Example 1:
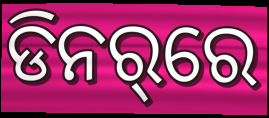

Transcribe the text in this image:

ଡିନର୍‌ରେ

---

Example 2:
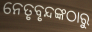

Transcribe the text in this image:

ନେତୃବୃନ୍ଦଙ୍କଠାରୁ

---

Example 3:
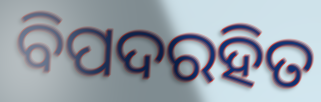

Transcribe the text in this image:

ବିପଦରହିତ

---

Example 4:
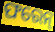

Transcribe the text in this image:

ଫରେନ୍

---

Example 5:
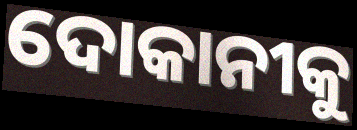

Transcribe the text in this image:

ଦୋକାନୀକୁ